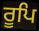
ਰੂਪਿ